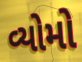
વ્યોમો